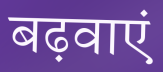
बढ़वाएं